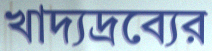
খাদ্যদ্রব্যের